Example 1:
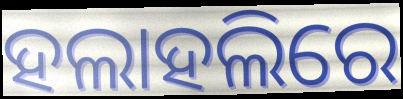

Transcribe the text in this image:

ହଲାହଲିରେ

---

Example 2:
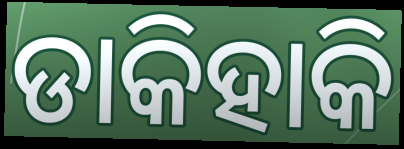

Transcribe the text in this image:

ଡାକିହାକି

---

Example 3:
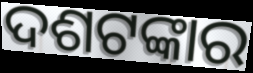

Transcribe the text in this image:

ଦଶଟଙ୍କାର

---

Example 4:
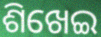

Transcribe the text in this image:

ଶିଖେଇ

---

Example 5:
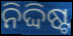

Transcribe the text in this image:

ନିଦ୍ଦିଷ୍ଟ